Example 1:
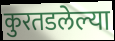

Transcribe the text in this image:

कुरतडलेल्या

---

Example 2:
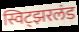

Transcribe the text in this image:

स्विट्झरलंड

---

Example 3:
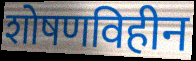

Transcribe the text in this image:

शोषणविहीन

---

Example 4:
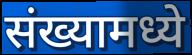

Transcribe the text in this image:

संख्यामध्ये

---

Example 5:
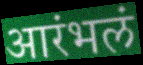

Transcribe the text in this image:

आरंभलं